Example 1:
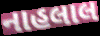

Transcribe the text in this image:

નાહલાલ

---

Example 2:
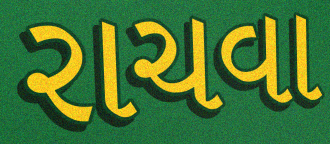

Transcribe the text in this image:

રાચવા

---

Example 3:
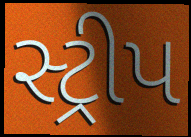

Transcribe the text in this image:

સ્ટ્રીપ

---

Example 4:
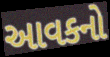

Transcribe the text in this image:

આવકનો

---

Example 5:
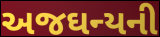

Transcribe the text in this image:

અજઘન્યની